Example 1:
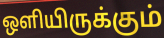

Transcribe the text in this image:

ஒளியிருக்கும்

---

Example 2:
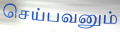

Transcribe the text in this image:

செய்பவனும்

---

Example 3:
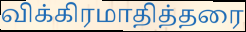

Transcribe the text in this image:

விக்கிரமாதித்தரை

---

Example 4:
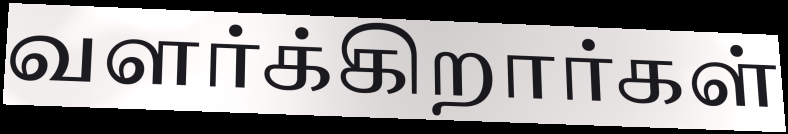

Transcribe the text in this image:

வளர்க்கிறார்கள்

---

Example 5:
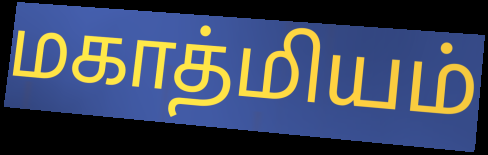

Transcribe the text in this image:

மகாத்மியம்